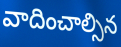
వాదించాల్సిన